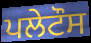
ਪਲੇਟੌਸ